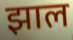
झाल